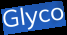
Glyco